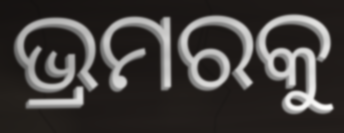
ଭ୍ରମରକୁ